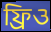
ফ্রিও